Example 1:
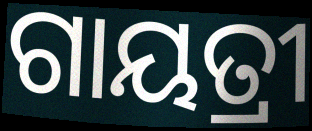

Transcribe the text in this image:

ଗାୟତ୍ରୀ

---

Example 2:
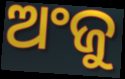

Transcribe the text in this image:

ଅଂଜୁ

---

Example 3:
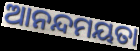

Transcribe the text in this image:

ଆନନ୍ଦମୟତା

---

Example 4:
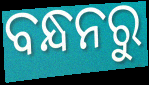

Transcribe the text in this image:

ବନ୍ଧନରୁ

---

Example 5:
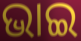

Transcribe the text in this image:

ଭାଇ